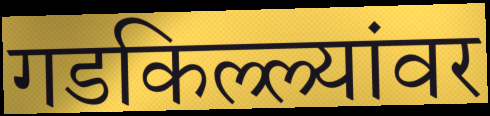
गडकिल्ल्यांवर